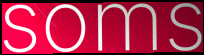
soms